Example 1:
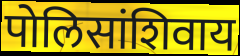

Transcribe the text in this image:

पोलिसांशिवाय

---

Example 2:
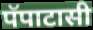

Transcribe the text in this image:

पॅपाटासी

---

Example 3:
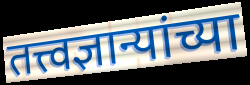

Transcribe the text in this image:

तत्त्वज्ञान्यांच्या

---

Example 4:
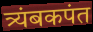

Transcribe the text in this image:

त्र्यंबकपंत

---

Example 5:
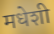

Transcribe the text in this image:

मधेशी